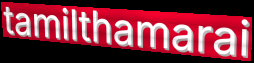
tamilthamarai